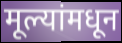
मूल्यांमधून